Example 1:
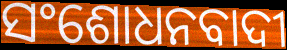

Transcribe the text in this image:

ସଂଶୋଧନବାଦୀ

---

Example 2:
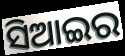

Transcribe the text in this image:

ସିଆଇର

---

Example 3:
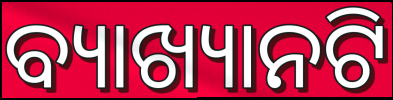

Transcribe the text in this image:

ବ୍ୟାଖ୍ୟାନଟି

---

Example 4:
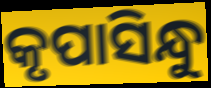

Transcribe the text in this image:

କୃପାସିନ୍ଧୁ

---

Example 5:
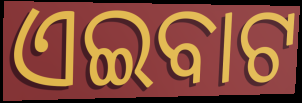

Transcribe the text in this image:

ଏଇବାଟ